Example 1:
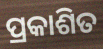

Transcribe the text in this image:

ପ୍ରକାଶିତ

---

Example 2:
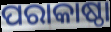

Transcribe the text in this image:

ପରାକାଷ୍ଠା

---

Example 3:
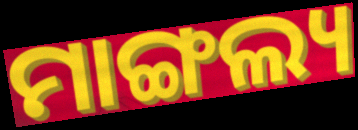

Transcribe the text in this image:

ମାଙ୍ଗଲ୍ୟ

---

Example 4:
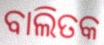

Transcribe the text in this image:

ବାଲିତକ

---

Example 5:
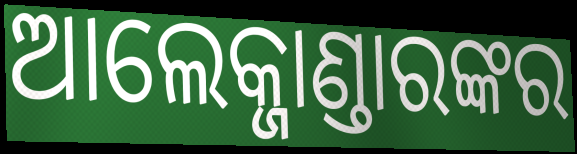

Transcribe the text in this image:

ଆଲେକ୍ଜାଣ୍ଡାରଙ୍କର